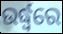
ଉର୍ଦ୍ଧ୍ଵରେ